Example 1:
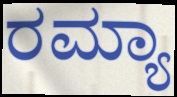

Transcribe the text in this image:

ರಮ್ಯಾ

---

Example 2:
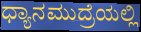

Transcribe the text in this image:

ಧ್ಯಾನಮುದ್ರೆಯಲ್ಲಿ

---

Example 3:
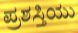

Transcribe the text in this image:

ಪ್ರಶಸ್ತಿಯು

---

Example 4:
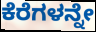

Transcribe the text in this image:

ಕೆರೆಗಳನ್ನೇ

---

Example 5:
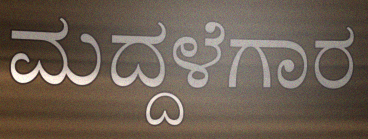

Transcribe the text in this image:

ಮದ್ದಳೆಗಾರ